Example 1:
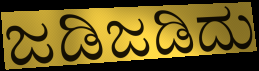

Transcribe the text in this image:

ಜಡಿಜಡಿದು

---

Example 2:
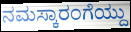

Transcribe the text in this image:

ನಮಸ್ಕಾರಂಗೆಯ್ದು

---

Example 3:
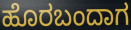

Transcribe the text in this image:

ಹೊರಬಂದಾಗ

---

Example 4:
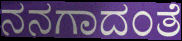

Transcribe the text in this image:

ನನಗಾದಂತೆ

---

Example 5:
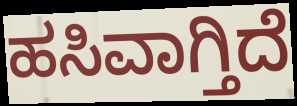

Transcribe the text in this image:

ಹಸಿವಾಗ್ತಿದೆ